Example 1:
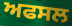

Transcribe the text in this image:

ਅਫਸਲ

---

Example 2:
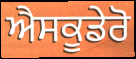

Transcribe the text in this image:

ਐਸਕੂਡੇਰੋ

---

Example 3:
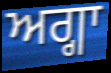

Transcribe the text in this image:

ਅਗ੍ਗਾ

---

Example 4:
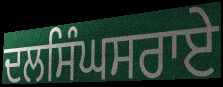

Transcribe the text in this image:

ਦਲਸਿੰਘਸਰਾਏ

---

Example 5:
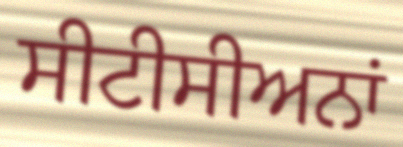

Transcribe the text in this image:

ਸੀਟੀਸੀਅਨਾਂ